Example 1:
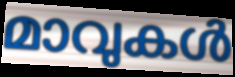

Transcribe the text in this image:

മാവുകൾ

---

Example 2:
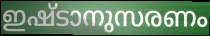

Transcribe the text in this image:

ഇഷ്ടാനുസരണം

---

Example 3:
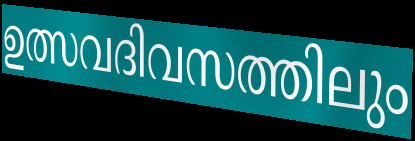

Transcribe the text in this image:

ഉത്സവദിവസത്തിലും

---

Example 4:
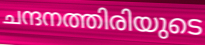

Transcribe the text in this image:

ചന്ദനത്തിരിയുടെ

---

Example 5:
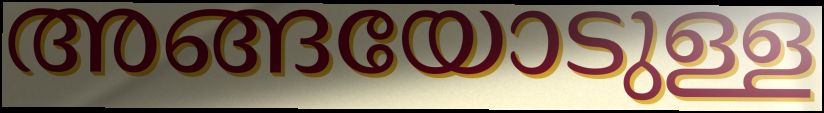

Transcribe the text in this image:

അങ്ങയോടുള്ള